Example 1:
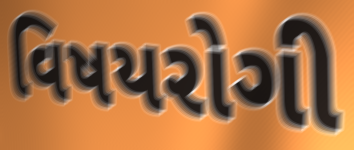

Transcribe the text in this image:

વિષયરોગી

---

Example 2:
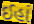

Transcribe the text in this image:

ઈહાં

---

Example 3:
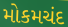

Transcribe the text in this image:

મોકમચંદ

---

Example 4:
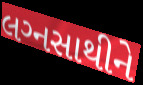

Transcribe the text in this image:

લગ્‍નસાથીને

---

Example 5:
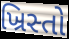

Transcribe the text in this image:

ખ્રિસ્તો